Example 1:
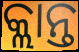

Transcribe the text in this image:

କ୍ଲାନ୍ତ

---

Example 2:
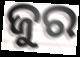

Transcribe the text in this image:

ଜୁର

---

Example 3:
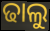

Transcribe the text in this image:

ଢାଲୁ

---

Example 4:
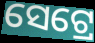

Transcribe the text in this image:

ସେଟ୍ରେ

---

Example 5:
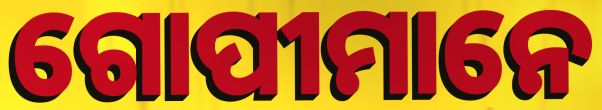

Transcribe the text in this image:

ଗୋପୀମାନେ